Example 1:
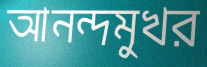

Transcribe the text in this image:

আনন্দমুখর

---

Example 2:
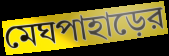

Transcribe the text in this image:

মেঘপাহাড়ের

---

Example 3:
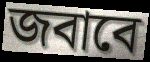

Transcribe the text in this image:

জবাবে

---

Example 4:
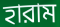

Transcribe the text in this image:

হারাম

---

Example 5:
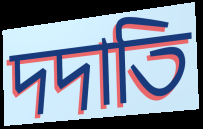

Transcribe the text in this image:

দদাতি